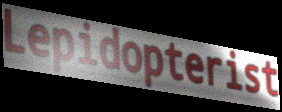
Lepidopterist